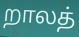
றாலத்